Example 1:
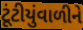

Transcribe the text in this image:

ટૂંટીયુંવાળીને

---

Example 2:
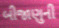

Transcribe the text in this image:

બીજાણુની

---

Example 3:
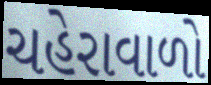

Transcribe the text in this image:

ચહેરાવાળો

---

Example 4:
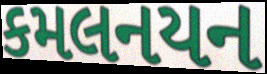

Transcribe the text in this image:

કમલનયન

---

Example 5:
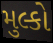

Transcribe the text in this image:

મુલ્કો